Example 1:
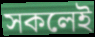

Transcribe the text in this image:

সকলেই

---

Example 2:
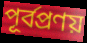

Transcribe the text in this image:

পূর্বপ্রণয়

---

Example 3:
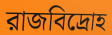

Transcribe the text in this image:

রাজবিদ্রোহ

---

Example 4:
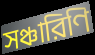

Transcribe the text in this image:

সঞ্চারিণি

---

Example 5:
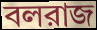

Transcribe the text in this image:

বলরাজ